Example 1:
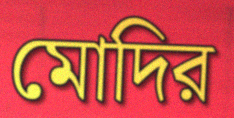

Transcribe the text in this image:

মোদির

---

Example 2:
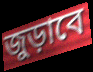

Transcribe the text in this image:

জুড়াবে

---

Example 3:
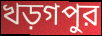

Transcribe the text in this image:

খড়গপুর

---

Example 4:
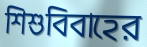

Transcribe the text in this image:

শিশুবিবাহের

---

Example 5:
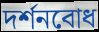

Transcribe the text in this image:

দর্শনবোধ